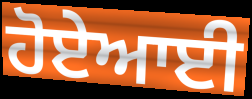
ਹੋਏਆਈ